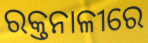
ରକ୍ତନାଳୀରେ